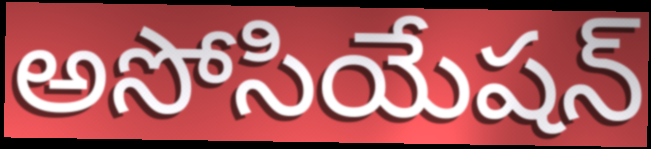
అసోసియేషన్